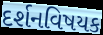
દર્શનવિષયક